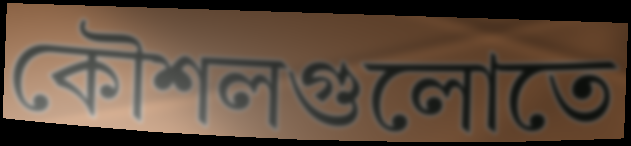
কৌশলগুলোতে